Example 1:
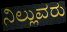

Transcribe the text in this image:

ನಿಲ್ಲುವರು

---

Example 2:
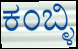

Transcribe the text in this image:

ಕಂಬ್ಳಿ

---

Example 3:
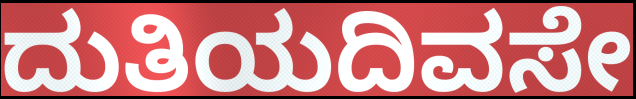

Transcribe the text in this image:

ದುತಿಯದಿವಸೇ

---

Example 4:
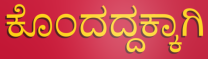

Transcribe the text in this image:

ಕೊಂದದ್ದಕ್ಕಾಗಿ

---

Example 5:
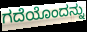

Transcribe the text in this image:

ಗದೆಯೊಂದನ್ನು